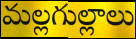
మల్లగుల్లాలు